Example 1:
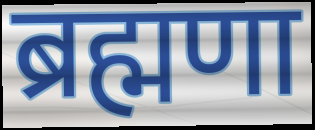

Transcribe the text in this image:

ब्रह्मणा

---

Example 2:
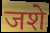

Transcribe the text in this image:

जशे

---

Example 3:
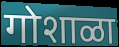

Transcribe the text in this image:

गोशाळा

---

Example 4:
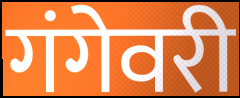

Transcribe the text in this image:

गंगेवरी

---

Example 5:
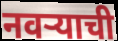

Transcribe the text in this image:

नवर्‍याची